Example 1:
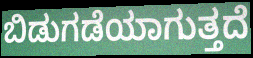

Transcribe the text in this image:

ಬಿಡುಗಡೆಯಾಗುತ್ತದೆ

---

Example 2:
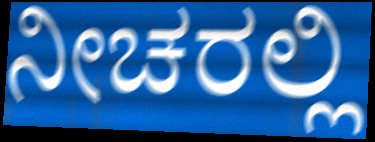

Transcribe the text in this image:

ನೀಚರಲ್ಲಿ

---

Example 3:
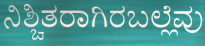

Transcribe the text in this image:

ನಿಶ್ಚಿತರಾಗಿರಬಲ್ಲೆವು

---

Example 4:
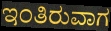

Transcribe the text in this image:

ಇಂತಿರುವಾಗ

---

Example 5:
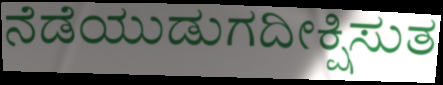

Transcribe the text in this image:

ನೆಡೆಯುಡುಗದೀಕ್ಷಿಸುತ